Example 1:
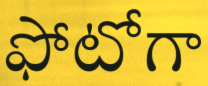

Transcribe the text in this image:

ఫోటోగా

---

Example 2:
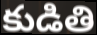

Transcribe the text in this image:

కుడితి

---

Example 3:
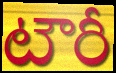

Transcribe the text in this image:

టౌరీ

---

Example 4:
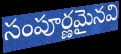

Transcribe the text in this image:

సంపూర్ణమైనవి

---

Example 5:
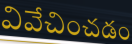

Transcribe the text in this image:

వివేచించడం